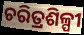
ଚରିତ୍ରଶିଳ୍ପୀ